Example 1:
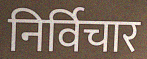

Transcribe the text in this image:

निर्विचार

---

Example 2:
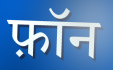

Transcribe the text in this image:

फ़ॉन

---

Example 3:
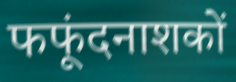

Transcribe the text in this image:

फफूंदनाशकों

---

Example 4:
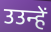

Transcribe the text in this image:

उउन्हें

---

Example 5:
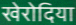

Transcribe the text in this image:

खेरोदिया